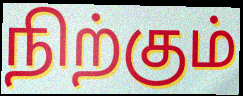
நிற்கும்